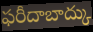
ఫరీదాబాద్కు